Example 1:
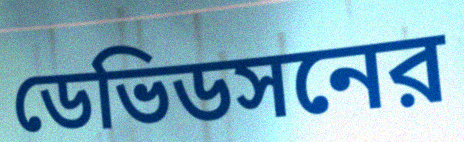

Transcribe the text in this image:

ডেভিডসনের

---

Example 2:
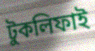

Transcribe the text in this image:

টুকলিফাই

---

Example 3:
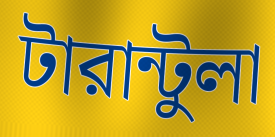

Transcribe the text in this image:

টারান্টুলা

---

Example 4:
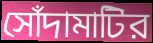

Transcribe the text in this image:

সোঁদামাটির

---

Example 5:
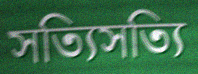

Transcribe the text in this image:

সত্যিসত্যি